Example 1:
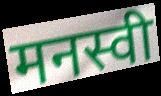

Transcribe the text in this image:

मनस्वी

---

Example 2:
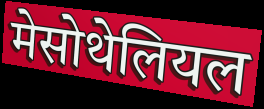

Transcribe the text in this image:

मेसोथेलियल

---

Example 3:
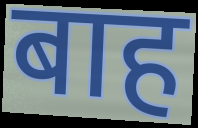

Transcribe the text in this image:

बाह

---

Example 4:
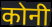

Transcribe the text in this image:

कोनी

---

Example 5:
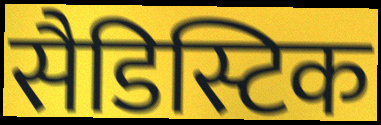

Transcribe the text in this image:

सैडिस्टिक